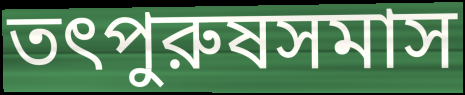
তৎপুরুষসমাস